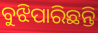
ବୁଝିପାରିଛନ୍ତି